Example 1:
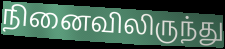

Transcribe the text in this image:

நினைவிலிருந்து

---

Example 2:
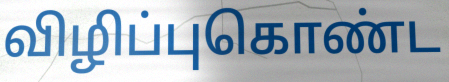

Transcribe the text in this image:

விழிப்புகொண்ட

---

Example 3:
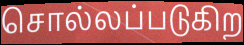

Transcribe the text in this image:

சொல்லப்படுகிற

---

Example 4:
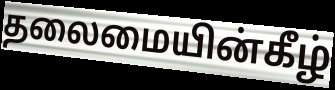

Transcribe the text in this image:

தலைமையின்கீழ்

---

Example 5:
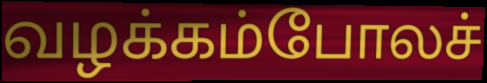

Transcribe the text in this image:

வழக்கம்போலச்